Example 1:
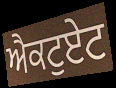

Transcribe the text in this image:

ਐਕਟੁਏਟ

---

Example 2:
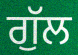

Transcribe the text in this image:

ਗੁੱਲ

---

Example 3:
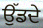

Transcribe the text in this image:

ਉੱਡਦੇ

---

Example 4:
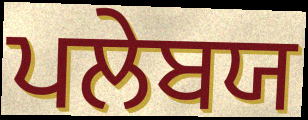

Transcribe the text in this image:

ਪਲੇਬਯ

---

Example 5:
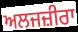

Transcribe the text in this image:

ਅਲਜਜ਼ੀਰਾ